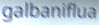
galbaniflua